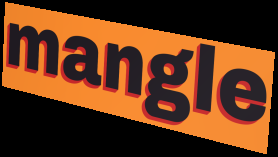
mangle